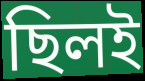
ছিলই